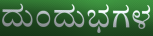
ದುಂದುಭಗಳ